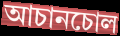
আচানচোল